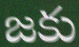
జకు